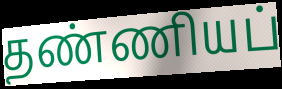
தண்ணியப்